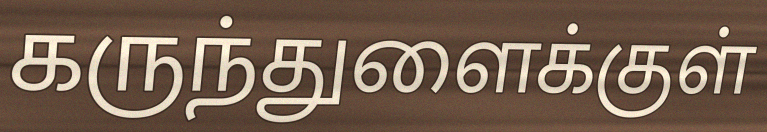
கருந்துளைக்குள்